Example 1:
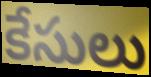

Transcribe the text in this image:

కేసులు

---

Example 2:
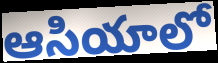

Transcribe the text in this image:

ఆసియాలో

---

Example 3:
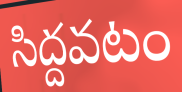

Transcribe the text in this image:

సిద్దవటం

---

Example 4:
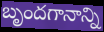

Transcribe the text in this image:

బృందగానాన్ని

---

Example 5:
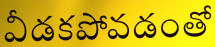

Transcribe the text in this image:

వీడకపోవడంతో